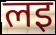
लइ